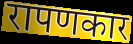
रापणकार